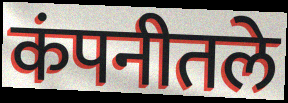
कंपनीतले